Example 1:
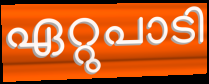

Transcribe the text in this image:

ഏറ്റുപാടി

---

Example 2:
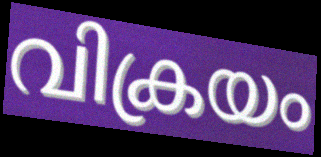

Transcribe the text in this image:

വിക്രയം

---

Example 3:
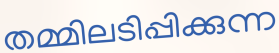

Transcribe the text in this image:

തമ്മിലടിപ്പിക്കുന്ന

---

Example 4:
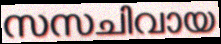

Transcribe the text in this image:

സസചിവായ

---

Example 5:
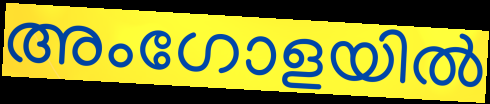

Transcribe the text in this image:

അംഗോളയിൽ